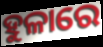
ହୁଳାରେ